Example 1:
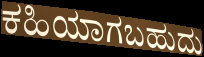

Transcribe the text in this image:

ಕಹಿಯಾಗಬಹುದು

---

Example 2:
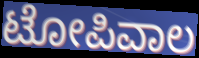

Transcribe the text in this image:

ಟೋಪಿವಾಲ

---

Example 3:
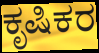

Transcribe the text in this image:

ಕೃಷಿಕರ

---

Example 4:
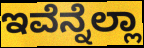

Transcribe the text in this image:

ಇವೆನ್ನೆಲ್ಲಾ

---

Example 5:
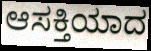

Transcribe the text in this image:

ಆಸಕ್ತಿಯಾದ